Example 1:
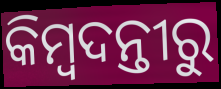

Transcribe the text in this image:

କିମ୍ବଦନ୍ତୀରୁ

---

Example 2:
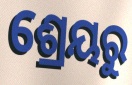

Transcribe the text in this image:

ଶ୍ରେୟରୁ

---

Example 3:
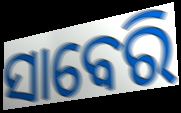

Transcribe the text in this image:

ସାବେରି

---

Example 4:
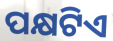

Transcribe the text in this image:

ପକ୍ଷଟିଏ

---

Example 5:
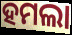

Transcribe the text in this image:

ହମଲା